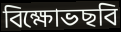
বিক্ষোভছবি